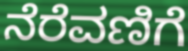
ನೆರೆವಣಿಗೆ